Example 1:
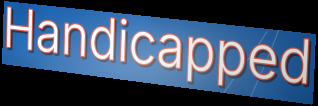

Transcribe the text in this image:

Handicapped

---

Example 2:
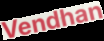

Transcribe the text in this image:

Vendhan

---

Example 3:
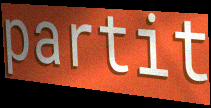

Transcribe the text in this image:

partit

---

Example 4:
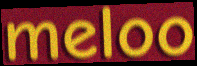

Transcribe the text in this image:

meloo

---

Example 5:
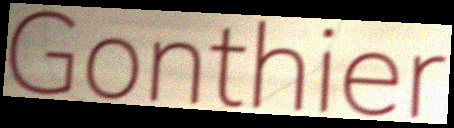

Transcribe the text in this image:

Gonthier